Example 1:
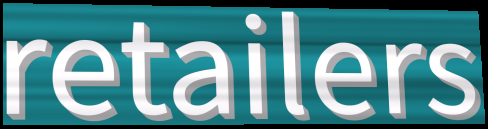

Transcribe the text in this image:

retailers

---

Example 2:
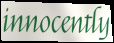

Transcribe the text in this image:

innocently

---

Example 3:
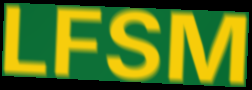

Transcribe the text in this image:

LFSM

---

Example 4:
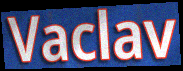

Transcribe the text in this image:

Vaclav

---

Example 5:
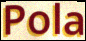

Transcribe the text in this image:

Pola